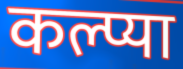
कल्प्या